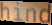
hind